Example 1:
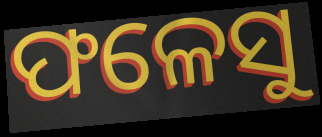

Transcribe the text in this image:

ଫଳେସୁ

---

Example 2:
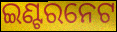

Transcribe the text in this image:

ଇଣ୍ଟରନେଟ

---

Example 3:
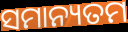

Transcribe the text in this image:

ସମାନ୍ୟତମ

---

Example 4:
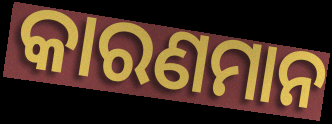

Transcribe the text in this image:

କାରଣମାନ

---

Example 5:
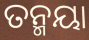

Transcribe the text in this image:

ତନ୍ମୟା